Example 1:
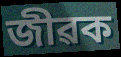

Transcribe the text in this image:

জীৱক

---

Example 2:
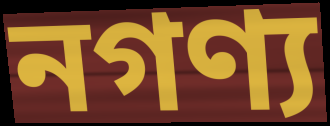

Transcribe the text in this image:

নগণ্য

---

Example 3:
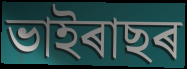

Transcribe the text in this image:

ভাইৰাছৰ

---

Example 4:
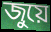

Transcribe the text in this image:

জুয়ে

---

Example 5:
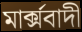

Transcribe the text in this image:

মাৰ্ক্সবাদী